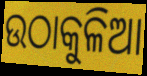
ଉଠାକୁଳିଆ